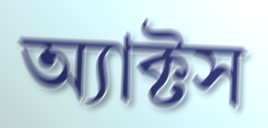
অ্যাক্টস